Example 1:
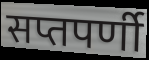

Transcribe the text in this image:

सप्तपर्णी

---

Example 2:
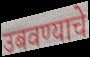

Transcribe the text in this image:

उबवण्याचे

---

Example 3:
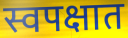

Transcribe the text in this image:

स्वपक्षात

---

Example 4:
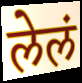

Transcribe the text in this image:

लेलं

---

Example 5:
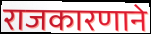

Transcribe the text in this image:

राजकारणाने